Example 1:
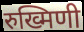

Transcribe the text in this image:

रुख्मिणी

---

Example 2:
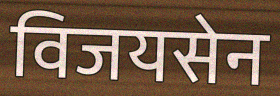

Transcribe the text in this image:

विजयसेन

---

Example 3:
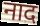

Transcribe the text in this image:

नाद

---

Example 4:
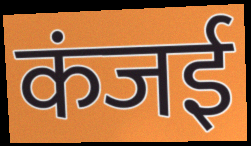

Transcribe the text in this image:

कंजई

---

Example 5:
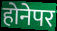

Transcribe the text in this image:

होनेपर